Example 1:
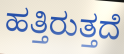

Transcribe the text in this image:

ಹತ್ತಿರುತ್ತದೆ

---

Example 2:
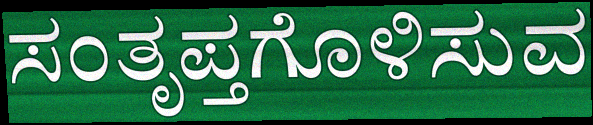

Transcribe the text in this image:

ಸಂತೃಪ್ತಗೊಳಿಸುವ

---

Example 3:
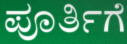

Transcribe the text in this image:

ಪೂರ್ತಿಗೆ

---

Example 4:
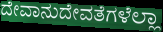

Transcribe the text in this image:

ದೇವಾನುದೇವತೆಗಳೆಲ್ಲಾ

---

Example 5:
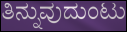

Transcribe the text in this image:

ತಿನ್ನುವುದುಂಟು